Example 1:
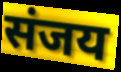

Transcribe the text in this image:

संजय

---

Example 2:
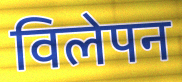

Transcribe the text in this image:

विलेपन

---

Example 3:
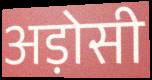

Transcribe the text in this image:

अड़ोसी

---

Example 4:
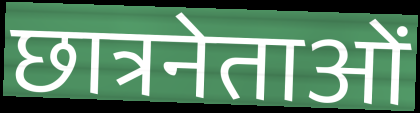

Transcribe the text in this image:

छात्रनेताओं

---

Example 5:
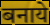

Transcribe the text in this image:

बनाये